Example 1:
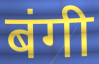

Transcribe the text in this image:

बंगी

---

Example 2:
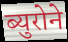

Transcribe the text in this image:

ब्युरोने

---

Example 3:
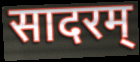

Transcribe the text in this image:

सादरम्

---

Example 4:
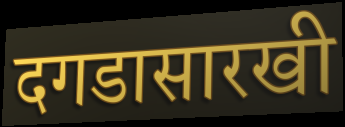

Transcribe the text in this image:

दगडासारखी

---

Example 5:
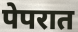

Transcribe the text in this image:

पेपरात